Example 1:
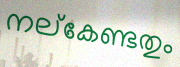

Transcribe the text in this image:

നല്കേണ്ടതും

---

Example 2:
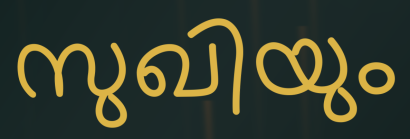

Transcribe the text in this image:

സുഖിയും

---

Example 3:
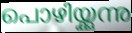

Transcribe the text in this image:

പൊഴിയ്ക്കുന്നു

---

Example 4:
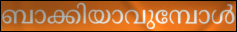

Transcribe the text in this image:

ബാക്കിയാവുമ്പോൾ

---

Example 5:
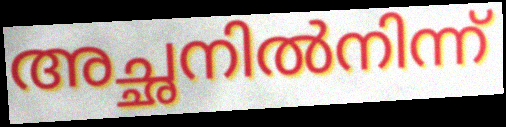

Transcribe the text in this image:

അച്ഛനിൽനിന്ന്